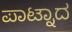
ಪಾಟ್ನಾದ